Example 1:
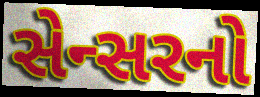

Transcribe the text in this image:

સેન્સરનો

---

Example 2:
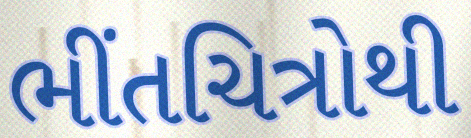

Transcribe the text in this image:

ભીંતચિત્રોથી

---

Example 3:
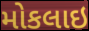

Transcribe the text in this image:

મોકલાઇ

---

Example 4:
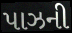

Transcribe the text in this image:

પાઝની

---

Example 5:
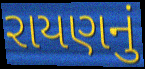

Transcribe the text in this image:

રાયણનું